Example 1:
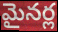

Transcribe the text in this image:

మైనర్ల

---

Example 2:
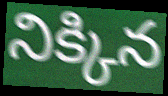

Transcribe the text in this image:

నిక్కిన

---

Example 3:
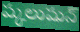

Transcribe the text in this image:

ష్కలుషున్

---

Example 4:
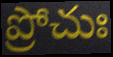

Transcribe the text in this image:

ప్రోచుః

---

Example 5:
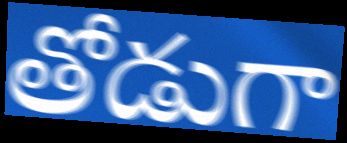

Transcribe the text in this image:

తోడుగా